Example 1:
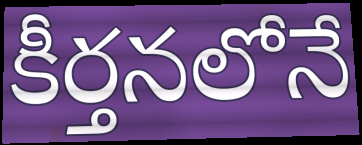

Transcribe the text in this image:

కీర్తనలోనే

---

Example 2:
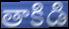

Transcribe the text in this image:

తాకిడి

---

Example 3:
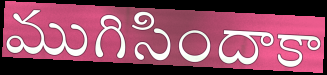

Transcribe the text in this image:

ముగిసిందాకా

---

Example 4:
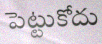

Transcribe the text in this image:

పెట్టుకోదు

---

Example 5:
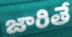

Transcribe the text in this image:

జారితే